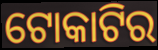
ଟୋକାଟିର